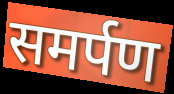
समर्पण